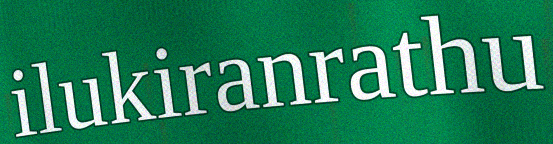
ilukiranrathu